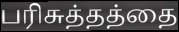
பரிசுத்தத்தை